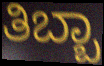
ತಿಬ್ಬಾ